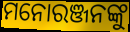
ମନୋରଞ୍ଜନଙ୍କୁ